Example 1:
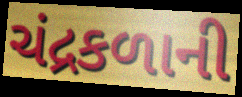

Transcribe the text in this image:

ચંદ્રકળાની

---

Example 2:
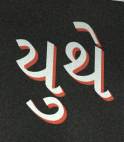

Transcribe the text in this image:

યુથે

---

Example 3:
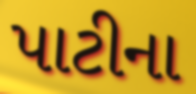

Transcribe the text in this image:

પાટીના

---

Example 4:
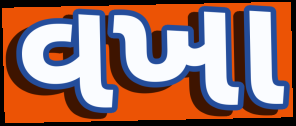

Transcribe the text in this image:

વખા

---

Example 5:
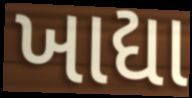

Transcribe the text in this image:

ખાદ્યા